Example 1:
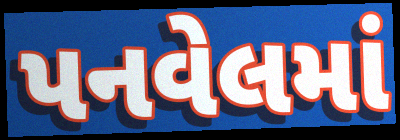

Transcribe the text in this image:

પનવેલમાં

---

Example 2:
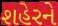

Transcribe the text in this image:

શહેરને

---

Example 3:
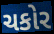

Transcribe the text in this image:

ચકોર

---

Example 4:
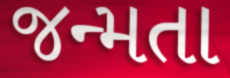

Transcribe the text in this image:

જન્મતા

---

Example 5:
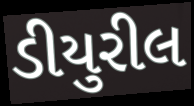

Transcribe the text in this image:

ડીયુરીલ